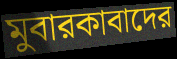
মুবারকাবাদের